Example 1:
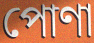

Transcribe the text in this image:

পোণা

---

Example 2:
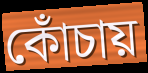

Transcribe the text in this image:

কোঁচায়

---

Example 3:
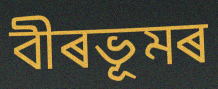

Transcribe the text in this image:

বীৰভূমৰ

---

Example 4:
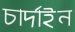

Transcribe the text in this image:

চাৰ্দাইন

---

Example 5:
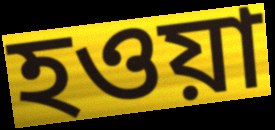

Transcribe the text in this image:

হওয়া